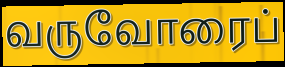
வருவோரைப்